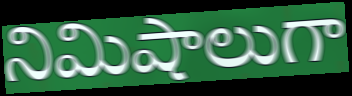
నిమిషాలుగా